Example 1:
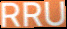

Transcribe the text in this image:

RRU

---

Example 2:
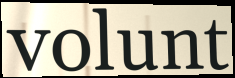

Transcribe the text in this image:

volunt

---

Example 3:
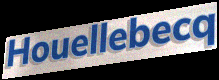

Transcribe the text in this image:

Houellebecq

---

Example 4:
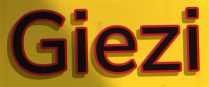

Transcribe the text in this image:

Giezi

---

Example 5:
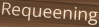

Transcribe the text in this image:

Requeening